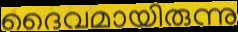
ദൈവമായിരുന്നു